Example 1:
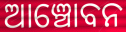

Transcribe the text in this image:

ଆଞ୍ଚୋବନ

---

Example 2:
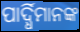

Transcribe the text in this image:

ପାର୍ଦ୍ଧିମାନଙ୍କ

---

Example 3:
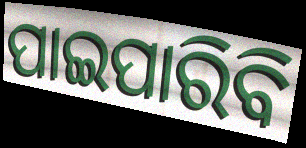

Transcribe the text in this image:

ପାଇପାରିବି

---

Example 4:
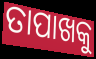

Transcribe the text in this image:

ତାପାଖକୁ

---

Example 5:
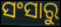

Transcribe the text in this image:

ସଂସାରୁ